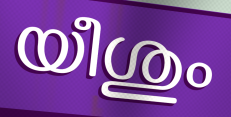
യീശും